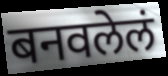
बनवलेलं